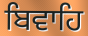
ਬਿਵਾਹਿ